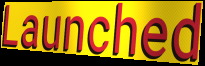
Launched